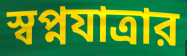
স্বপ্নযাত্রার